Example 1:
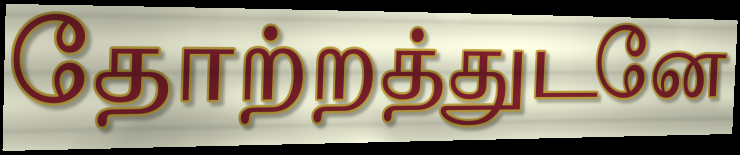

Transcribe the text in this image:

தோற்றத்துடனே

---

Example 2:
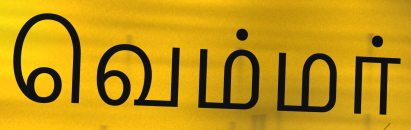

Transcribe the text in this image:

வெம்மர்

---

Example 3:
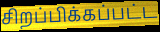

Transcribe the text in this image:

சிறப்பிக்கப்பட்ட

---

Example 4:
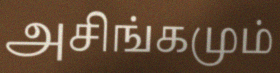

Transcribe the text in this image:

அசிங்கமும்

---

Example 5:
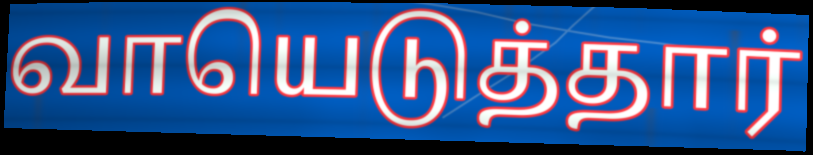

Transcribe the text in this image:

வாயெடுத்தார்